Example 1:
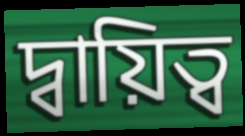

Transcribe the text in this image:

দ্বায়িত্ব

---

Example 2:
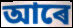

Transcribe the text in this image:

আৰে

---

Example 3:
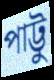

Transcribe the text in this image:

পাট্টু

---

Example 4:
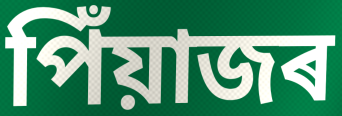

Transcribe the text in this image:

পিঁয়াজৰ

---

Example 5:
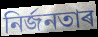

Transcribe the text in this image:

নিৰ্জনতাৰ